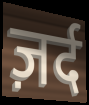
ज़र्द